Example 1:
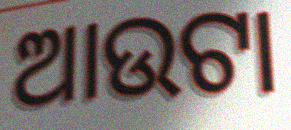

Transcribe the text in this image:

ଆଉଟା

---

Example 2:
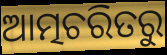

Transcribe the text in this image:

ଆତ୍ମଚରିତରୁ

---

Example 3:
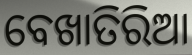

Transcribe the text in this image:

ବେଖାତିରିଆ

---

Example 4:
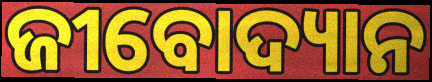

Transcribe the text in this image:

ଜୀବୋଦ୍ୟାନ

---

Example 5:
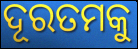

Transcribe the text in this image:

ଦୂରତମକୁ